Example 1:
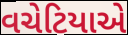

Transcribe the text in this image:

વચેટિયાએ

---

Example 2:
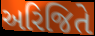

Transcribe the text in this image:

અરિજિતે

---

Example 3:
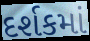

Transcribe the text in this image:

દર્શકમાં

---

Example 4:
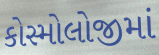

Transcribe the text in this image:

કોસ્મોલોજીમાં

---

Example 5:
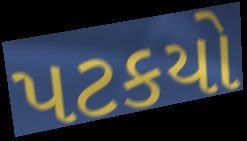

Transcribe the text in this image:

પટકયો